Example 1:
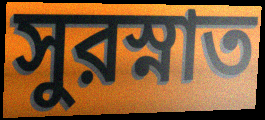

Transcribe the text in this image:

সুরস্নাত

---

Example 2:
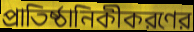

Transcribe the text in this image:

প্রাতিষ্ঠানিকীকরণের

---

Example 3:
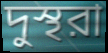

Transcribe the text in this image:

দুস্থরা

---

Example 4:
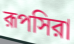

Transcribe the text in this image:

রূপসিরা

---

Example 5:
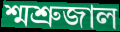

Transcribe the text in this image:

শ্মশ্রুজাল